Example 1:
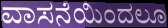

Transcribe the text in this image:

ವಾಸನೆಯಿಂದಲೂ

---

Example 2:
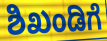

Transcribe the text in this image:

ಶಿಖಂಡಿಗೆ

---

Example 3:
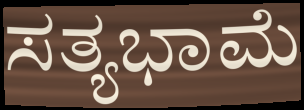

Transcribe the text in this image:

ಸತ್ಯಭಾಮೆ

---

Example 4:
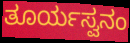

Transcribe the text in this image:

ತೂರ್ಯಸ್ವನಂ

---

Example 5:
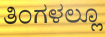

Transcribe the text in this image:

ತಿಂಗಳಲ್ಲೂ